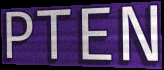
PTEN